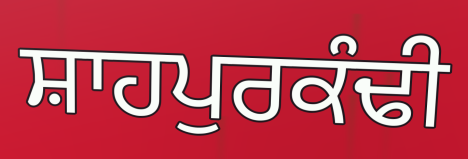
ਸ਼ਾਹਪੁਰਕੰਢੀ